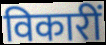
विकारीं